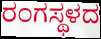
ರಂಗಸ್ಥಳದ